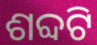
ଶବ୍ଦଟି